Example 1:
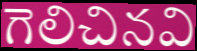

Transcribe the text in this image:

గెలిచినవి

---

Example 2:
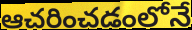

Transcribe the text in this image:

ఆచరించడంలోనే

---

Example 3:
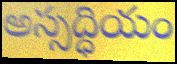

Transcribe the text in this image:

అస్సద్ధియం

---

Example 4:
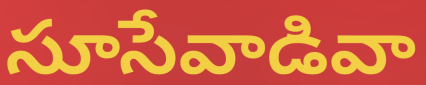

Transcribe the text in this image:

సూసేవాడివా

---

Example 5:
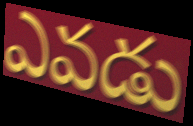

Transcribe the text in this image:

ఎవడు